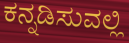
ಕನ್ನಡಿಸುವಲ್ಲಿ